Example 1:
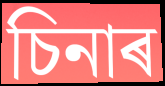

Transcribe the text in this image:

চিনাৰ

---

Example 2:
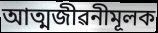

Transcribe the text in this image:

আত্মজীৱনীমূলক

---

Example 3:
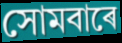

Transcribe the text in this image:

সোমবাৰে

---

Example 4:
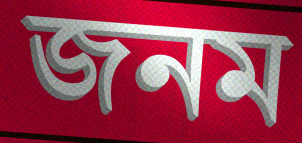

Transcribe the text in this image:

জনম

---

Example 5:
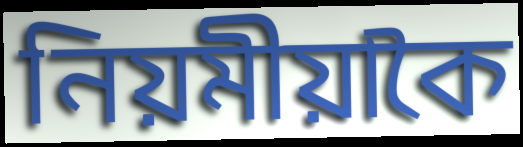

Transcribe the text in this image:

নিয়মীয়াকৈ